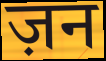
ज़न